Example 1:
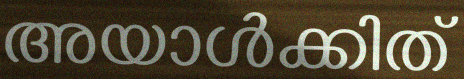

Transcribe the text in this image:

അയാൾക്കിത്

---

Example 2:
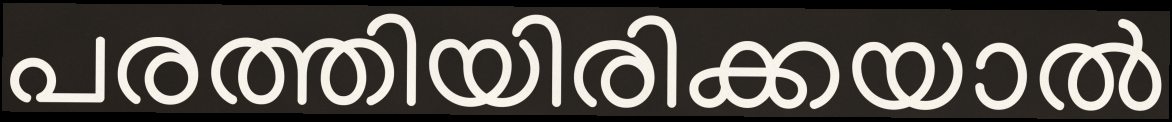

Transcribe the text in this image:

പരത്തിയിരിക്കയാൽ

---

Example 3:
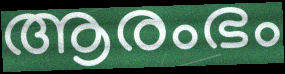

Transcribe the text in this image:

ആരംഭം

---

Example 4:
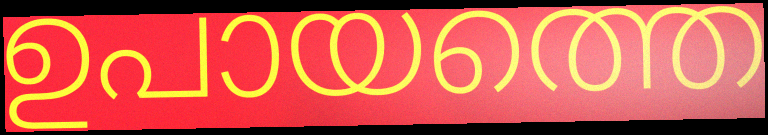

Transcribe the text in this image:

ഉപായത്തെ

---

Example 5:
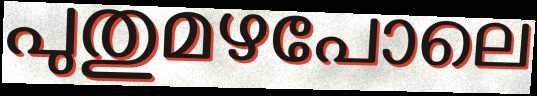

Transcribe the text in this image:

പുതുമഴപോലെ